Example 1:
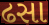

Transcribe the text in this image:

ઢસા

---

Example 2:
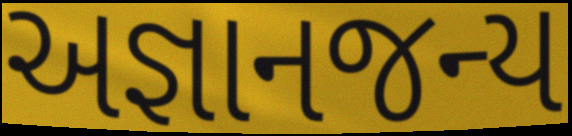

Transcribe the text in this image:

અજ્ઞાનજન્ય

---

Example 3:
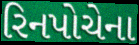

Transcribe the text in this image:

રિનપોચેના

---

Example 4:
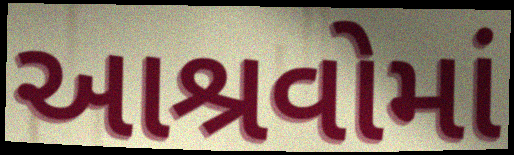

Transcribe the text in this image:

આશ્રવોમાં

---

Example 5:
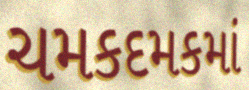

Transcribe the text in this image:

ચમકદમકમાં